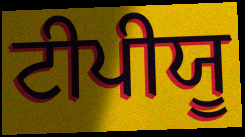
ਟੀਪੀਯੂ